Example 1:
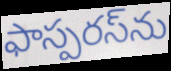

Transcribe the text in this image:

ఫాస్పరస్‌ను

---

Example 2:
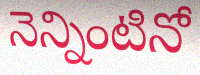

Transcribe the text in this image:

నెన్నింటినో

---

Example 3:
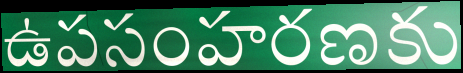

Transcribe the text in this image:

ఉపసంహరణకు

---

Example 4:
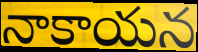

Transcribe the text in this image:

నాకాయన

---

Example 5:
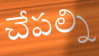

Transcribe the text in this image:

చేపల్ని